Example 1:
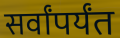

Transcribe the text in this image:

सर्वांपर्यंत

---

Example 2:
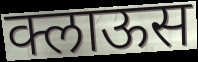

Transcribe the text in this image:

क्लाऊस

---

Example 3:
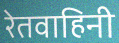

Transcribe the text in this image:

रेतवाहिनी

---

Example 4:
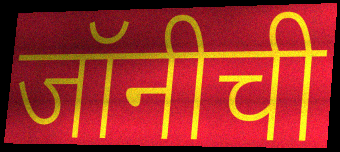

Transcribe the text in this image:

जॉनीची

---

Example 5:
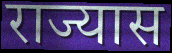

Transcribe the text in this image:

राज्यास